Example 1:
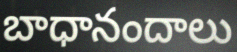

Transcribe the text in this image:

బాధానందాలు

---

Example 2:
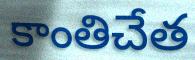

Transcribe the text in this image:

కాంతిచేత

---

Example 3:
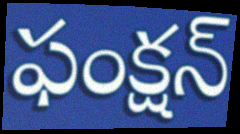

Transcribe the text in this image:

ఫంక్షన్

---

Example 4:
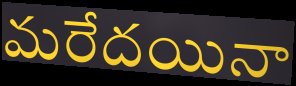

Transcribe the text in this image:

మరేదయినా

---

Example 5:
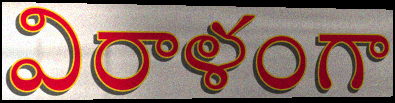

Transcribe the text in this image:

విరాళంగా